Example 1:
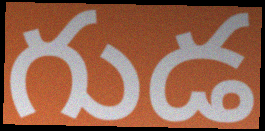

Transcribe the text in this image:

గుడ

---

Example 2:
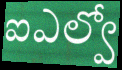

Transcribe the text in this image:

ఐఎల్వో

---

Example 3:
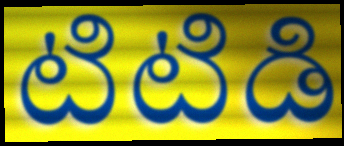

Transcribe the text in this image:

టిటిడి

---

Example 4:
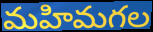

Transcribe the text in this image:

మహిమగల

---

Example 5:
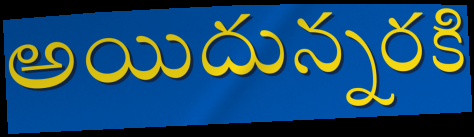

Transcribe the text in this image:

అయిదున్నరకి